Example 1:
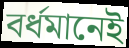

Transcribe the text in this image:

বর্ধমানেই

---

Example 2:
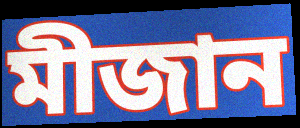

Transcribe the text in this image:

মীজান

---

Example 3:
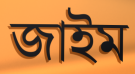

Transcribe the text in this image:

জাইম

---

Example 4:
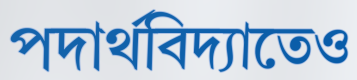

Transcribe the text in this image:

পদার্থবিদ্যাতেও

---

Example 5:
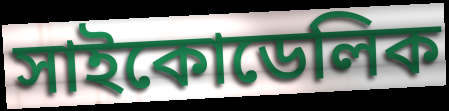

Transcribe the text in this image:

সাইকোডেলিক